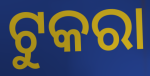
ଟୁକରା